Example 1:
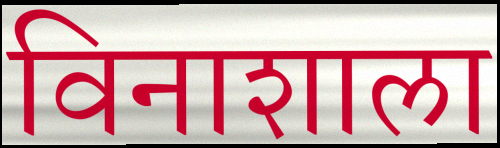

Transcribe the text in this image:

विनाशाला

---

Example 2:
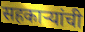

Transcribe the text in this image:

सहकाऱ्यांची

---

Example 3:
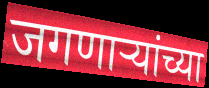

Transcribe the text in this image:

जगणाऱ्यांच्या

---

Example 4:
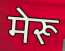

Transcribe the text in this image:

मेरू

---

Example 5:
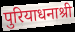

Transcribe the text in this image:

पुरियाधनाश्री